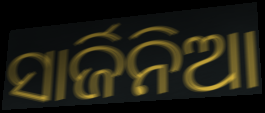
ସାର୍ଜିନିଆ